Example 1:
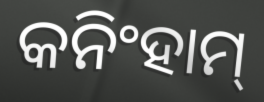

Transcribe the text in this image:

କନିଂହାମ୍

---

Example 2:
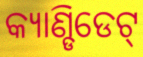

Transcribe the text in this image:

କ୍ୟାଣ୍ଡିଡେଟ୍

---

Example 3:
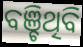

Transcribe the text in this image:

ବଞ୍ଚିଥିବି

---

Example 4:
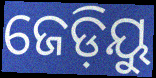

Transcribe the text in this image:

ଜେଡ଼ିୟୁ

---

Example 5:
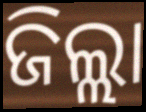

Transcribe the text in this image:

ଜିଲ୍ଲା